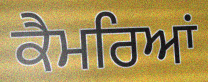
ਕੈਮਰਿਆਂ